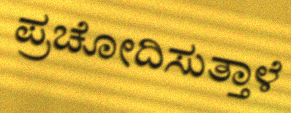
ಪ್ರಚೋದಿಸುತ್ತಾಳೆ